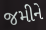
જમીને